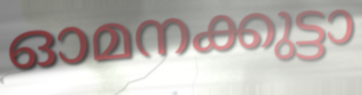
ഓമനക്കുട്ടാ